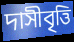
দাসীবৃত্তি